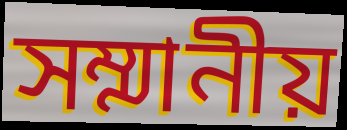
সম্মানীয়